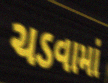
ચડવામાં